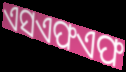
ଏସଏଫଏଫ